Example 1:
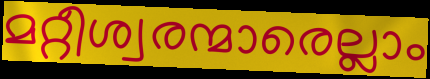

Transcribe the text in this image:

മറ്റീശ്വരന്മാരെല്ലാം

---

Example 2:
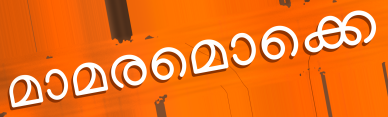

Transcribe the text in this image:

മാമരമൊക്കെ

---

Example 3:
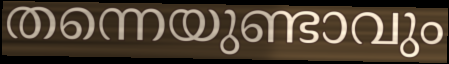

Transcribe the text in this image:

തന്നെയുണ്ടാവും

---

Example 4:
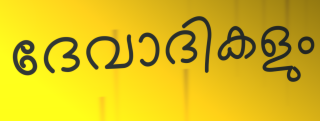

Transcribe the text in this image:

ദേവാദികളും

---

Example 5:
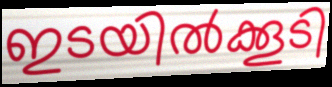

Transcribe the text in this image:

ഇടയിൽക്കൂടി